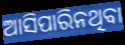
ଆସିପାରିନଥିବା